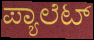
ಪ್ಯಾಲೆಟ್